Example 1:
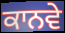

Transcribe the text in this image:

ਕਾਨਵੇ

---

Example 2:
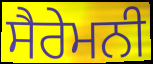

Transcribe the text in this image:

ਸੈਰੇਮਨੀ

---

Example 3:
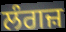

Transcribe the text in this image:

ਲੰਗਜ਼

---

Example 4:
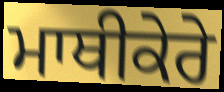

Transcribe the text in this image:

ਮਾਥੀਕੇਰੇ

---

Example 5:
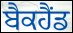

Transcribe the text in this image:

ਬੈਕਹੈਂਡ